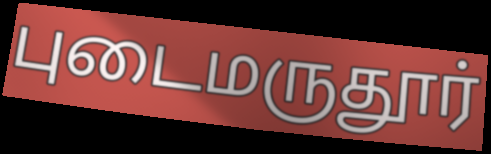
புடைமருதூர்